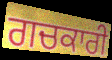
ਗਚਕਾਰੀ